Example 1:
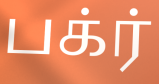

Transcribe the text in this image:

பக்ர்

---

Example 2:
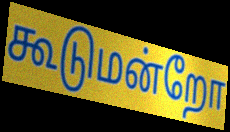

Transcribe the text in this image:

கூடுமன்றோ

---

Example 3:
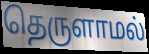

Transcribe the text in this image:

தெருளாமல்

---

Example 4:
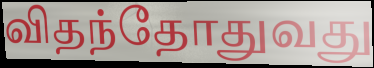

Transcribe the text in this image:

விதந்தோதுவது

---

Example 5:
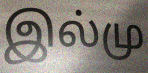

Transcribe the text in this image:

இல்மு